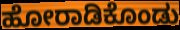
ಹೋರಾಡಿಕೊಂಡು